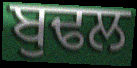
ਬੁਢਲ